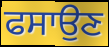
ਫਸਾਉਣ